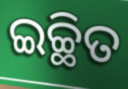
ଇଚ୍ଛିତ